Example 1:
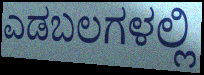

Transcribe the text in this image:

ಎಡಬಲಗಳಲ್ಲಿ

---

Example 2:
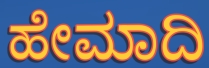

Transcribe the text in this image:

ಹೇಮಾದಿ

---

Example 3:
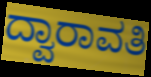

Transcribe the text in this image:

ದ್ವಾರಾವತಿ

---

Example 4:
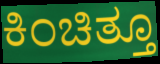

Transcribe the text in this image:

ಕಿಂಚಿತ್ತೂ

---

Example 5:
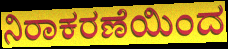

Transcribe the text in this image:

ನಿರಾಕರಣೆಯಿಂದ